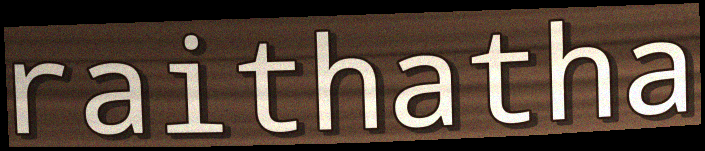
raithatha